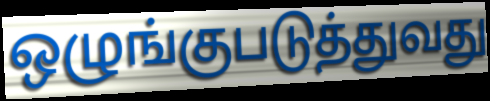
ஒழுங்குபடுத்துவது